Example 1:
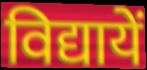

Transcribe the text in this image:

विद्यायें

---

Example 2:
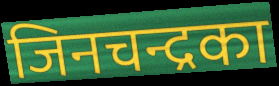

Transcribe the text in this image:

जिनचन्द्रका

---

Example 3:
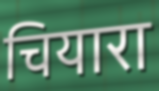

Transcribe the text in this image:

चियारा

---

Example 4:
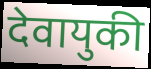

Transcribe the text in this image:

देवायुकी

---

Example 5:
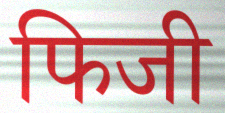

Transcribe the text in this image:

फिजी